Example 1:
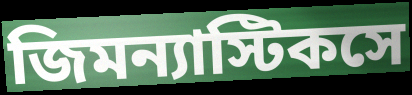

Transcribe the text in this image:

জিমন্যাস্টিকসে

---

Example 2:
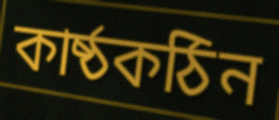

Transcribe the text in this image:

কাষ্ঠকঠিন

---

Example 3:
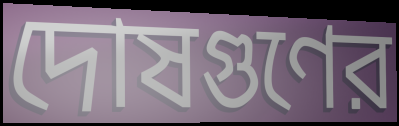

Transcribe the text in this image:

দোষগুণের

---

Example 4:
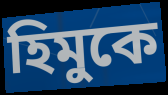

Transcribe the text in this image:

হিমুকে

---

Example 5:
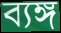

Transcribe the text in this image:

ব্যঙ্গ